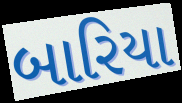
બારિયા